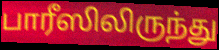
பாரீஸிலிருந்து